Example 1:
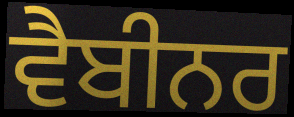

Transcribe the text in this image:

ਵੈਬੀਨਰ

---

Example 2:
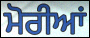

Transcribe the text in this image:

ਮੋਰੀਆਂ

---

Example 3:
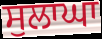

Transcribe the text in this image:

ਸੁਲਾਘਾ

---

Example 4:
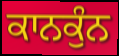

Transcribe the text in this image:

ਕਾਨਕੁੰਨ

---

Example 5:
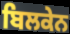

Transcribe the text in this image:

ਬਿਲਕੇਨ